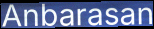
Anbarasan